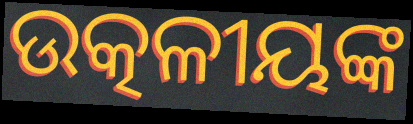
ଉତ୍କଳୀୟଙ୍କ